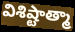
విశిష్టాత్మా